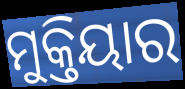
ମୁକ୍ତିୟାର